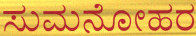
ಸುಮನೋಹರ